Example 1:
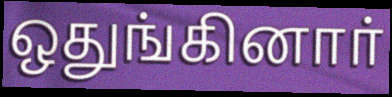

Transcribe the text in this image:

ஒதுங்கினார்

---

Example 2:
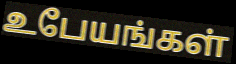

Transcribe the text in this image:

உபேயங்கள்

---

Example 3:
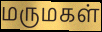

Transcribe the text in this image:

மருமகள்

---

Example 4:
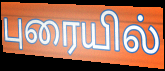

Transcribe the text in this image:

புரையில்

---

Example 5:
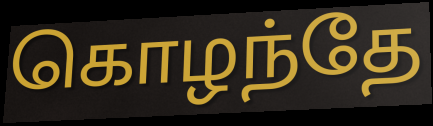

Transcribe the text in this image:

கொழந்தே